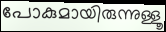
പോകുമായിരുന്നുള്ളൂ